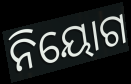
ନିୟୋଗ